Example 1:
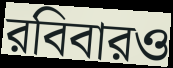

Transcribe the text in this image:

রবিবারও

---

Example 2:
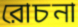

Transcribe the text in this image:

রোচনা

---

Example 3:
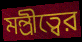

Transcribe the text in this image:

মন্ত্রীত্বের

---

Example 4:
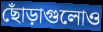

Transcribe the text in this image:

ছোঁড়াগুলোও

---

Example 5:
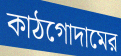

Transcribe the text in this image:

কাঠগোদামের